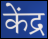
केंद्र